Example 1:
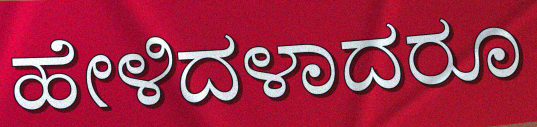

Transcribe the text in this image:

ಹೇಳಿದಳಾದರೂ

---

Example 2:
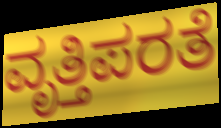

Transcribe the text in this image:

ವೃತ್ತಿಪರತೆ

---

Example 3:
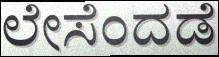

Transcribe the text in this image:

ಲೇಸೆಂದಡೆ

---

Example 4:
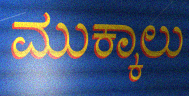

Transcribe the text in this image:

ಮುಕ್ಕಾಲು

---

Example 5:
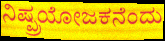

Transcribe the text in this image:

ನಿಷ್ಪ್ರಯೋಜಕನೆಂದು